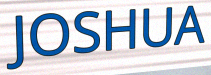
JOSHUA